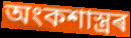
অংকশাস্ত্ৰৰ